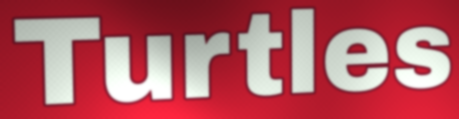
Turtles